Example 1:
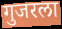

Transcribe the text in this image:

गुजरला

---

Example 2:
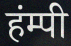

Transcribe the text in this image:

हंम्पी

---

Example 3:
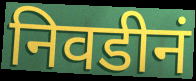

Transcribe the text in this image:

निवडीनं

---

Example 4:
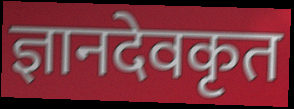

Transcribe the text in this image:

ज्ञानदेवकृत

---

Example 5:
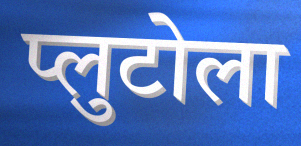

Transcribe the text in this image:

प्लुटोला